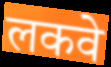
लकवे